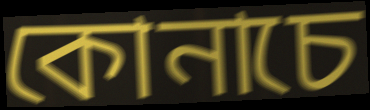
কোনাচে